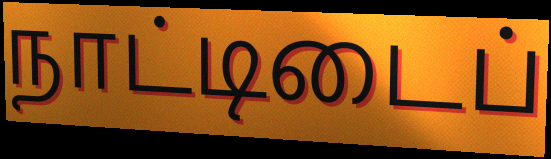
நாட்டிடைப்